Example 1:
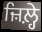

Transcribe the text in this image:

ਜ਼ਿਲ਼੍ਹੇ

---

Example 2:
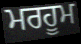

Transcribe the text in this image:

ਮਰਹੂਮ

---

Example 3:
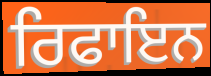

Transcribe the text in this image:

ਰਿਫਾਇਨ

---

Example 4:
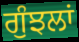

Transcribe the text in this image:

ਗੁੰਝਲਾਂ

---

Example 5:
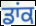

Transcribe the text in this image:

ਡਾਂਕ